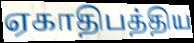
ஏகாதிபத்திய